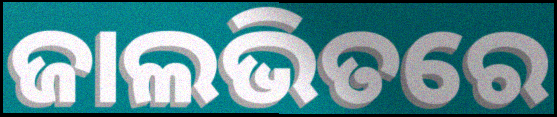
ଜାଲଭିତରେ